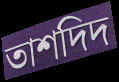
তাশদিদ